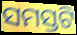
ସମସ୍ତଟି